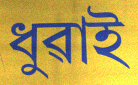
ধুৱাই